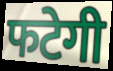
फटेगी